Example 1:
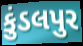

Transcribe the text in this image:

કુંડલપુર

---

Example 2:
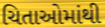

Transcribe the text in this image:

ચિતાઓમાંથી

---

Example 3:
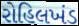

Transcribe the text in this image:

રોહિલખંડ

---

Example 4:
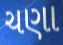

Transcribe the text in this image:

ચણા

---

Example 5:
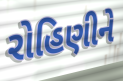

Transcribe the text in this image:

રોહિણીને